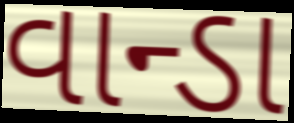
વાન્ડા